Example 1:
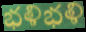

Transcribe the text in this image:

భళిభళి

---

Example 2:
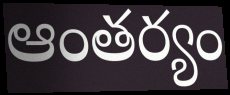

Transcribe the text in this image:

ఆంతర్యం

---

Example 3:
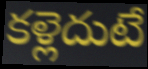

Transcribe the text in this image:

కళ్లెదుటే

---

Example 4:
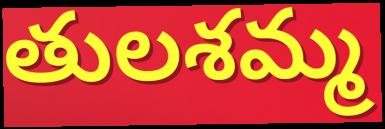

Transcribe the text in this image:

తులశమ్మ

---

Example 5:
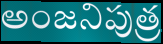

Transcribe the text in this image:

అంజనిపుత్ర